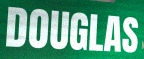
DOUGLAS